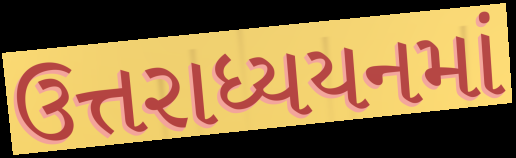
ઉત્તરાધ્યયનમાં